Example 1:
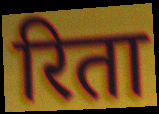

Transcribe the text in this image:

रिता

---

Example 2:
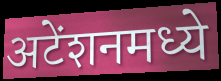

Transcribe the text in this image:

अटेंशनमध्ये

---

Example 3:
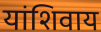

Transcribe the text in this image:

यांशिवाय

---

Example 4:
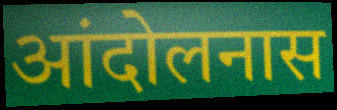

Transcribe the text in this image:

आंदोलनास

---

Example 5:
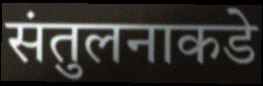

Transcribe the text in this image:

संतुलनाकडे